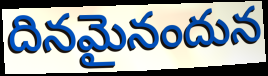
దినమైనందున